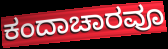
ಕಂದಾಚಾರವೂ